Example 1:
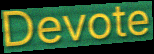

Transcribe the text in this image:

Devote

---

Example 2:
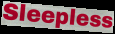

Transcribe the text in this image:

Sleepless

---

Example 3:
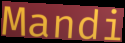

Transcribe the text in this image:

Mandi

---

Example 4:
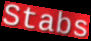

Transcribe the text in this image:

Stabs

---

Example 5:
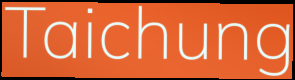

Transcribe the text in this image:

Taichung